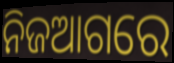
ନିଜଆଗରେ